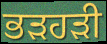
ਭੜਹੜੀ